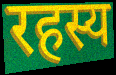
रहस्य